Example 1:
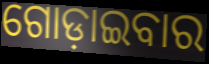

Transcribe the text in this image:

ଗୋଡ଼ାଇବାର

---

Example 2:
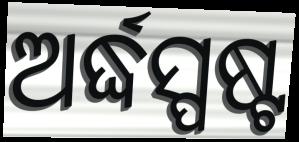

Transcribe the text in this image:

ଅର୍ଦ୍ଧସ୍ପଷ୍ଟ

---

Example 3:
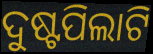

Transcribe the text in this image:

ଦୁଷ୍ଟପିଲାଟି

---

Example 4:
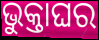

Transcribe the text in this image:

ଭୁକ୍ତାଘର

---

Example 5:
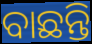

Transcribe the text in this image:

ବାଛନ୍ତି